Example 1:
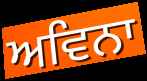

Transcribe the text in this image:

ਅਵਿਨਾ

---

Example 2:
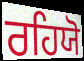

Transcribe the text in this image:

ਰਹਿਯੋ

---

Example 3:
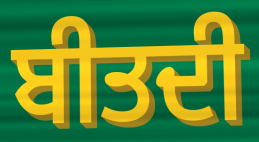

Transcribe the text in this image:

ਬੀਤਦੀ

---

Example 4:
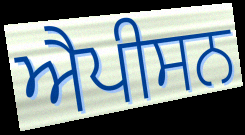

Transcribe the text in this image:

ਐਪੀਸਨ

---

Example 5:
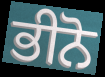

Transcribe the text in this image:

ਭੀਨੋ